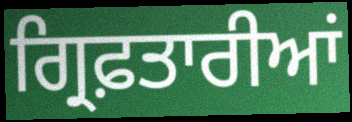
ਗ੍ਰਿਫ਼ਤਾਰੀਆਂ